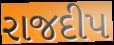
રાજદીપ